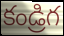
కండ్రిగ